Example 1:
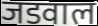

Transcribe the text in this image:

जडवाल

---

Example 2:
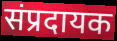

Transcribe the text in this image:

संप्रदायक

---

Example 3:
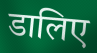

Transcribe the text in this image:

डालिए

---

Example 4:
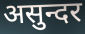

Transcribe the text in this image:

असुन्दर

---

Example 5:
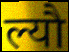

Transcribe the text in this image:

ल्यौ